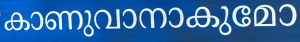
കാണുവാനാകുമോ